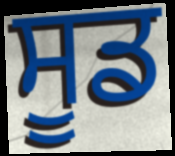
ਸੂਡ